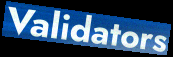
Validators